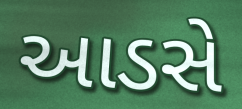
આડસે